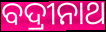
ବଦ୍ରୀନାଥ